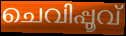
ചെവിപ്പൂവ്